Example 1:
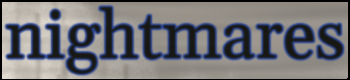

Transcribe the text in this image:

nightmares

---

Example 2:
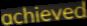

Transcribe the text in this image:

achieved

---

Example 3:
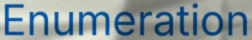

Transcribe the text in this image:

Enumeration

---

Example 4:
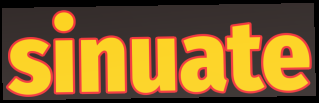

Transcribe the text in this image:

sinuate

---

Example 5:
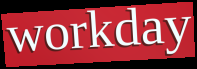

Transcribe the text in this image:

workday